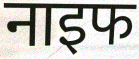
नाइफ